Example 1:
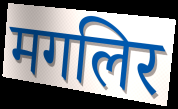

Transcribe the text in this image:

मगलिर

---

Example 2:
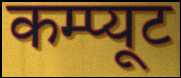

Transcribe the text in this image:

कम्प्यूट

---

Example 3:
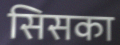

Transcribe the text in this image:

सिसका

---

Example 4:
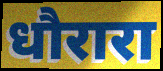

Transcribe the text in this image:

धौरारा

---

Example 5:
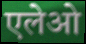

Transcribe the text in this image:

एलेओ